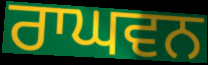
ਰਾਘਵਨ